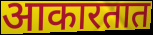
आकारतात